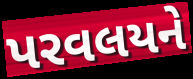
પરવલયને